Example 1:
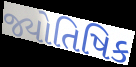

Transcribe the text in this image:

જ્યોતિષિક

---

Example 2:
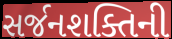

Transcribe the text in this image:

સર્જનશક્તિની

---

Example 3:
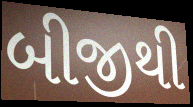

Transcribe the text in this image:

બીજીથી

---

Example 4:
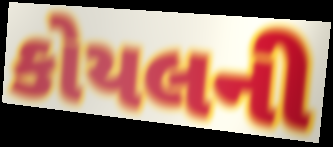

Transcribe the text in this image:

કોયલની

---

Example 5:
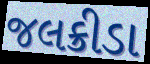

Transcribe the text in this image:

જલક્રીડા